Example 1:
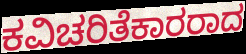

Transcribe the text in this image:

ಕವಿಚರಿತೆಕಾರರಾದ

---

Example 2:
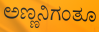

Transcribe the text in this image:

ಅಣ್ಣನಿಗಂತೂ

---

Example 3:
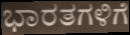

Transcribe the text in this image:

ಭಾರತಗಳಿಗೆ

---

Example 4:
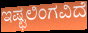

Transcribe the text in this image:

ಇಷ್ಟಲಿಂಗವಿದೆ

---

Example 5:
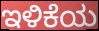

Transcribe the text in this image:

ಇಳಿಕೆಯ